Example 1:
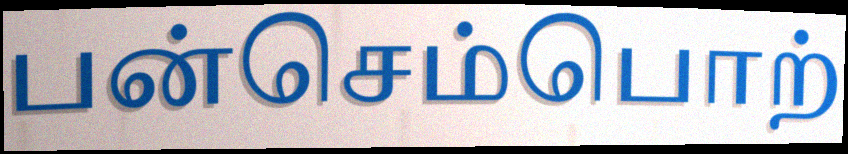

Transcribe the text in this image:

பன்செம்பொற்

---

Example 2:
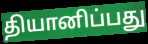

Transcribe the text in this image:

தியானிப்பது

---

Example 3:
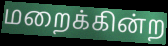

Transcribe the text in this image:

மறைக்கின்ற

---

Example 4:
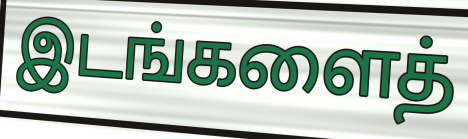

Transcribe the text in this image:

இடங்களைத்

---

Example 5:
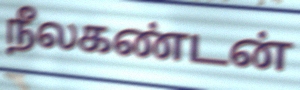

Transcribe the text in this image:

நீலகண்டன்